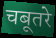
चबूतरे